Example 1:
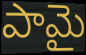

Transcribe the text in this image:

పామై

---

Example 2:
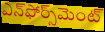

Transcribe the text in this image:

ఎన్‌ఫోర్స్‌మెంట్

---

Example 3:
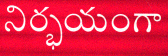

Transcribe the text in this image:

నిర్భయంగా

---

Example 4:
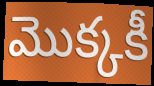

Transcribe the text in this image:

మొక్కకీ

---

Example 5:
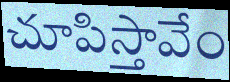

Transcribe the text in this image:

చూపిస్తావేం